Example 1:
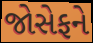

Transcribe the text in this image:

જોસેફને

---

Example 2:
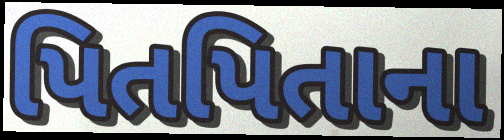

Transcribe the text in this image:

પિતપિતાના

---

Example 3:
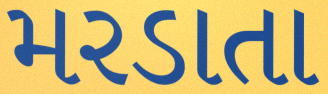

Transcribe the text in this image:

મરડાતા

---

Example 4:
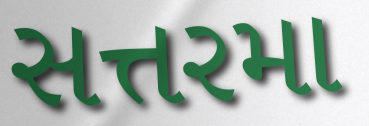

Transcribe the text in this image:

સત્તરમા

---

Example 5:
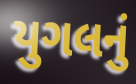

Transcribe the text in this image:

યુગલનું